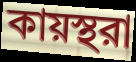
কায়স্থরা